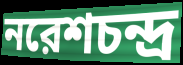
নরেশচন্দ্র